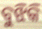
ବୁଝିକି